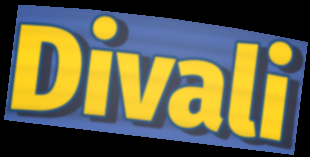
Divali